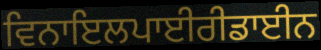
ਵਿਨਾਇਲਪਾਈਰੀਡਾਈਨ